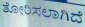
ತೋರಿಸಲಾಗಿದೆ